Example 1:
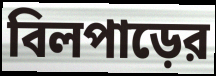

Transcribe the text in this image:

বিলপাড়ের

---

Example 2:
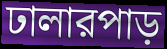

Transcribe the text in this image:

ঢালারপাড়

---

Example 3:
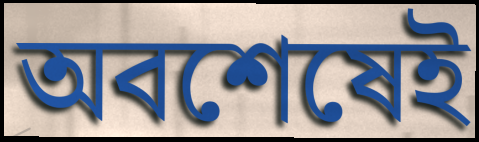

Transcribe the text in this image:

অবশেষেই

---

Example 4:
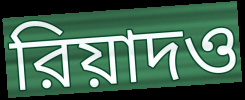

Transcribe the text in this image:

রিয়াদও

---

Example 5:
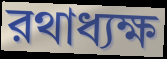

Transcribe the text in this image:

রথাধ্যক্ষ